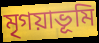
মৃগয়াভূমি